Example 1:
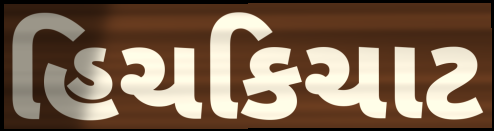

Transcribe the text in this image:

હિચકિચાટ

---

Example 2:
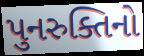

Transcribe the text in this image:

પુનરુક્તિનો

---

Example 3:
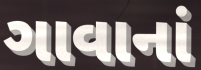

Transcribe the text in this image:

ગાવાનાં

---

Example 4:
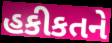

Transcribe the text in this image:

હકીકતને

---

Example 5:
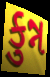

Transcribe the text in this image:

કુન્ન